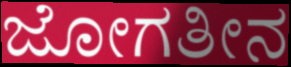
ಜೋಗತೀನ